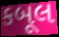
કબૂલ